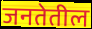
जनतेतील